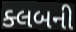
ક્લબની